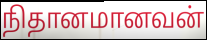
நிதானமானவன்